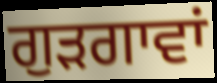
ਗੁੜਗਾਵਾਂ